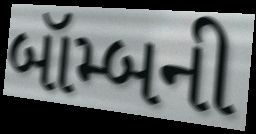
બૉમ્બની